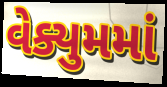
વેક્યુમમાં